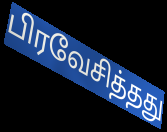
பிரவேசித்தது